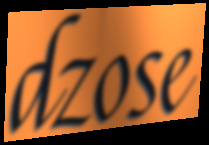
dzose